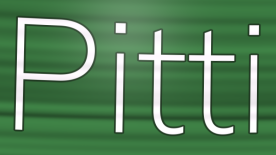
Pitti